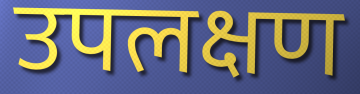
उपलक्षण